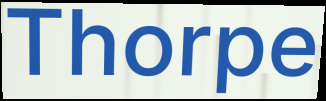
Thorpe